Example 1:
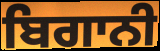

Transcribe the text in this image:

ਬਿਗਾਨੀ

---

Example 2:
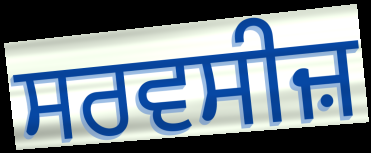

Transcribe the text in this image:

ਸਰਵਸੀਜ਼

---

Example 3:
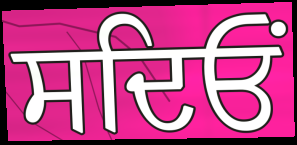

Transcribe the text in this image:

ਸਦਿਓਂ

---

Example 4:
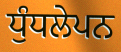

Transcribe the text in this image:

ਧੁੰਧਲੇਪਨ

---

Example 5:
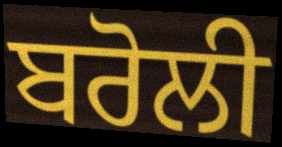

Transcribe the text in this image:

ਬਰੋਲੀ